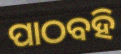
ପାଠବହି